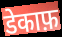
डेकाफ़